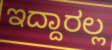
ಇದ್ದಾರಲ್ಲ